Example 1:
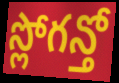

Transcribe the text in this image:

స్లోగన్తో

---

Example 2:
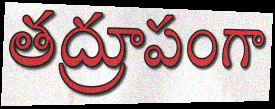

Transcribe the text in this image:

తద్రూపంగా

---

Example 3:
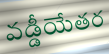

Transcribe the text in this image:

వడ్డీయేతర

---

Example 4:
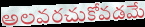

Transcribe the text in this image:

అలవరచుకోవడమే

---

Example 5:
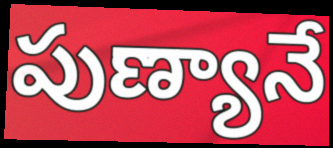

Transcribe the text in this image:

పుణ్యానే